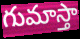
గుమాస్తా